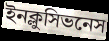
ইনক্লুসিভনেস